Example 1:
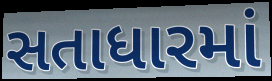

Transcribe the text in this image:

સતાધારમાં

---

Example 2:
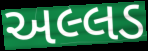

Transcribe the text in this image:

અલ્લડ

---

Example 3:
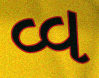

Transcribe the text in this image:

વ્વ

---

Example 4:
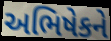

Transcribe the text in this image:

અભિષેકને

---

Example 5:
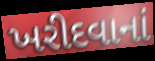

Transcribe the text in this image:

ખરીદવાનાં